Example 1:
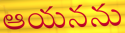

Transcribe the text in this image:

ఆయనను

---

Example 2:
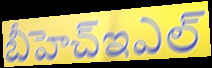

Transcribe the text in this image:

బీహెచ్ఇఎల్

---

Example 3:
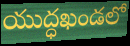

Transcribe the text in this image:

యుద్ధఖండలో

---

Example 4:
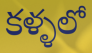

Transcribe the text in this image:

కళ్ళలో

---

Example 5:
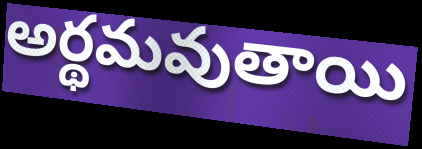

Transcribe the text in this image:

అర్థమవుతాయి